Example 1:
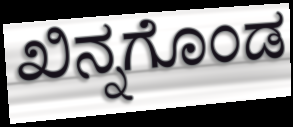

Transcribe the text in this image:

ಖಿನ್ನಗೊಂಡ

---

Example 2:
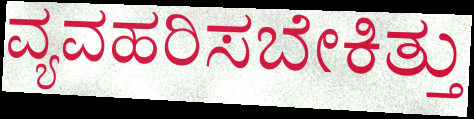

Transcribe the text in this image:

ವ್ಯವಹರಿಸಬೇಕಿತ್ತು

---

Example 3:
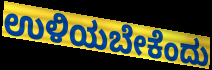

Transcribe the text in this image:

ಉಳಿಯಬೇಕೆಂದು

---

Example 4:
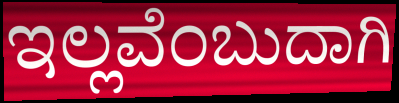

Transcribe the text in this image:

ಇಲ್ಲವೆಂಬುದಾಗಿ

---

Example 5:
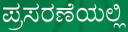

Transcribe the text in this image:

ಪ್ರಸರಣೆಯಲ್ಲಿ